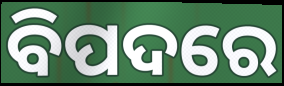
ବିପଦରେ